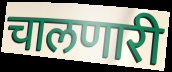
चालणारी